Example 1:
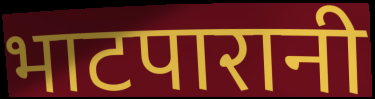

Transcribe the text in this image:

भाटपारानी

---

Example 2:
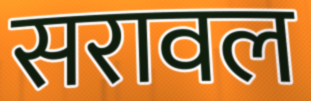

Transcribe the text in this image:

सरावल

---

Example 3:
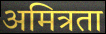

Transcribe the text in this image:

अमित्रता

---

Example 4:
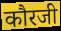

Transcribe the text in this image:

कौरजी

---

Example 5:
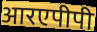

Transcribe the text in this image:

आरएपीपी